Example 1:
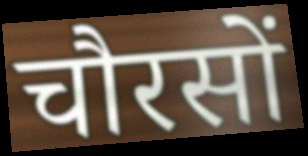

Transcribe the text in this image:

चौरसों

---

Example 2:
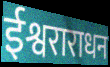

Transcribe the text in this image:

ईश्वराराधन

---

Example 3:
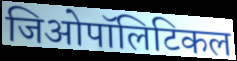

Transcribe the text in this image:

जिओपॉलिटिकल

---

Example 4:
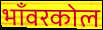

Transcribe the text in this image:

भाँवरकोल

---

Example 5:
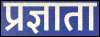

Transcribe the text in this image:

प्रज्ञाता